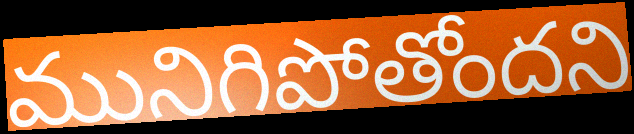
మునిగిపోతోందని